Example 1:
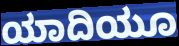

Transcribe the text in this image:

ಯಾದಿಯೂ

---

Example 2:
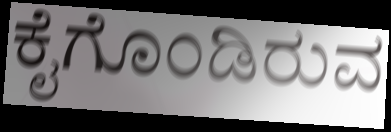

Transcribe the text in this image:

ಕೈಗೊಂಡಿರುವ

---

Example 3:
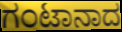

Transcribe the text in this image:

ಗಂಟಾನಾದ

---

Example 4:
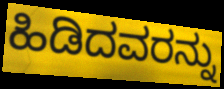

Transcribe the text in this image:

ಹಿಡಿದವರನ್ನು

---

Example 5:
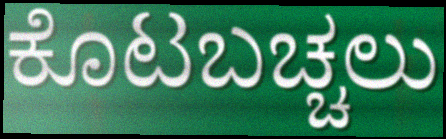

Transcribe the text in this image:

ಕೊಟಬಚ್ಚಲು